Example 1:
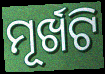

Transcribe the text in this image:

ମୂର୍ଖଟି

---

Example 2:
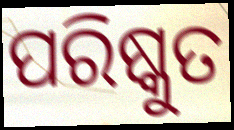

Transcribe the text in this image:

ପରିଷ୍କୁତ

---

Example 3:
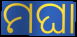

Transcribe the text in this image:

ମଘା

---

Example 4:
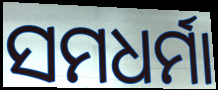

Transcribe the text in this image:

ସମଧର୍ମା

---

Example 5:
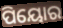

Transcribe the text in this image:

ପିୟୋର